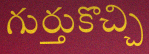
గుర్తుకొచ్చి